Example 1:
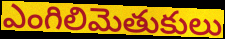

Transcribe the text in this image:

ఎంగిలిమెతుకులు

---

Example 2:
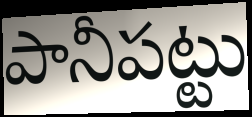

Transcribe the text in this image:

పానీపట్టు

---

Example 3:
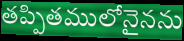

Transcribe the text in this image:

తప్పితములోనైనను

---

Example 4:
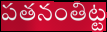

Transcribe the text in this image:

పతనంతిట్ట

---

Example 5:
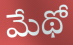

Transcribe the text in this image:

మేథో